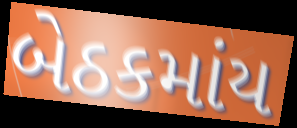
બેઠકમાંય